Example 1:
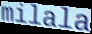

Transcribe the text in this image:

milala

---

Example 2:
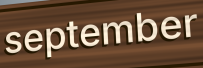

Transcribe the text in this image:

september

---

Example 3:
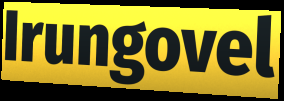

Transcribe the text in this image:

Irungovel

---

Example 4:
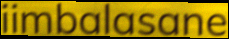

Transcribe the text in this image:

iimbalasane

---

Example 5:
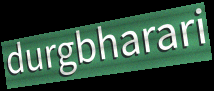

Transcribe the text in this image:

durgbharari